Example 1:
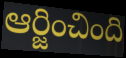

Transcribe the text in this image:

ఆర్జించింది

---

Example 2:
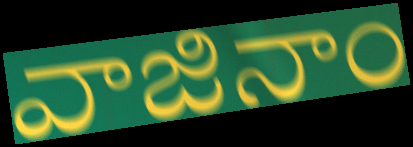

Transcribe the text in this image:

వాజినాం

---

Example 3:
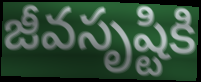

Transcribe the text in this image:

జీవసృష్టికి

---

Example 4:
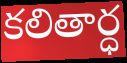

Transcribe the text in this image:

కలితార్ధ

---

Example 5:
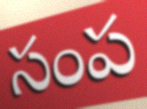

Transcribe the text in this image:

సంప